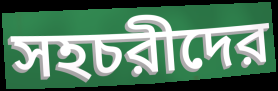
সহচরীদের